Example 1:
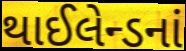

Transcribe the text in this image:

થાઈલેન્ડનાં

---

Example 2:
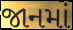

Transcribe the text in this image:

જાનમાં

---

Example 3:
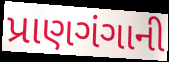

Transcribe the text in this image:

પ્રાણગંગાની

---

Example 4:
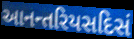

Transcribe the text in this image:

આનન્તરિયસદિસં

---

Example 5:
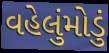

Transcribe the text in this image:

વહેલુંમોડું